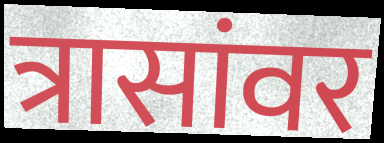
त्रासांवर